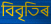
বিবৃতিৰ